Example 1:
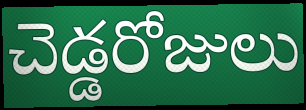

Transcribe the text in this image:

చెడ్డరోజులు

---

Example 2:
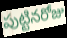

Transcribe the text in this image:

పుట్టినరోజు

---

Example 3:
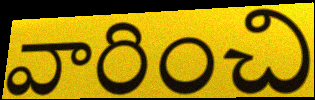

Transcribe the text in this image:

వారించి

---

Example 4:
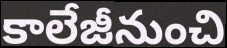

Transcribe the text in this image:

కాలేజీనుంచి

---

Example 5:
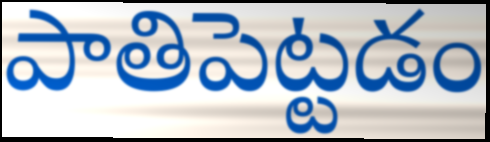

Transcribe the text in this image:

పాతిపెట్టడం